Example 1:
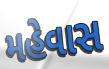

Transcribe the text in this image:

મહેવાસ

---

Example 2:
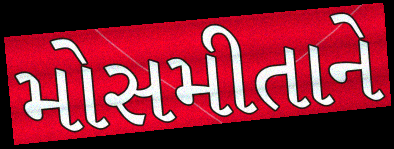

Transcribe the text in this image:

મોસમીતાને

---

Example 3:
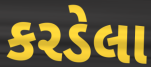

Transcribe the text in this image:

કરડેલા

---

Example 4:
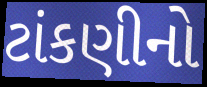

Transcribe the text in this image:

ટાંકણીનો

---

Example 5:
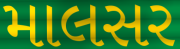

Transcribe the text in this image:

માલસર